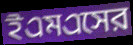
ইএমএসের